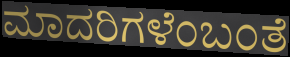
ಮಾದರಿಗಳೆಂಬಂತೆ